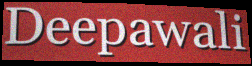
Deepawali